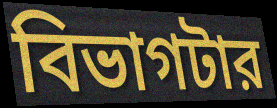
বিভাগটার